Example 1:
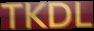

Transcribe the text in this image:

TKDL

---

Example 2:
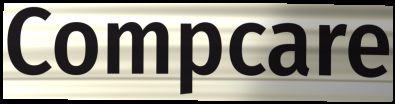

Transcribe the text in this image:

Compcare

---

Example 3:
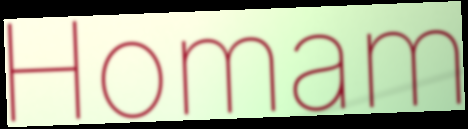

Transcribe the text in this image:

Homam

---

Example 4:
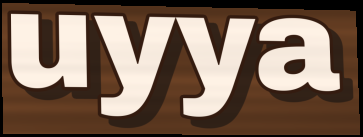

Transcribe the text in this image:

uyya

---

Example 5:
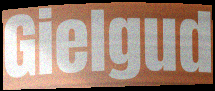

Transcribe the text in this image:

Gielgud